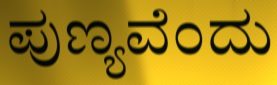
ಪುಣ್ಯವೆಂದು